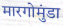
मारगोमुंडा